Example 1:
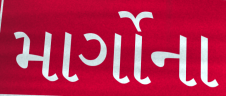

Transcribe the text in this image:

માર્ગોના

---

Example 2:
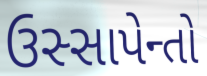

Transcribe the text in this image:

ઉસ્સાપેન્તો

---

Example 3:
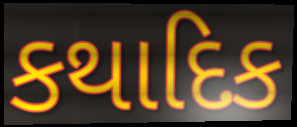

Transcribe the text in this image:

કથાદિક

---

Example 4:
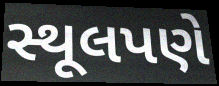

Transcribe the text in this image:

સ્થૂલપણે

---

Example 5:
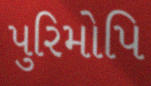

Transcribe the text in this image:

પુરિમોપિ